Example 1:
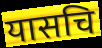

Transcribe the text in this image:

यासचि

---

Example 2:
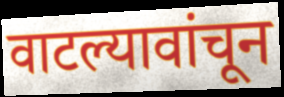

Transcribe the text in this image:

वाटल्यावांचून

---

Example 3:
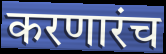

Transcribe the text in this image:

करणारंच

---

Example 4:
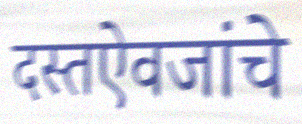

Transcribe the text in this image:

दस्तऐवजांचे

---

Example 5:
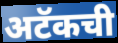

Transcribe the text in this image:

अटॅकची